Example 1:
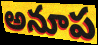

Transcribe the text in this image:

అనూప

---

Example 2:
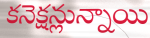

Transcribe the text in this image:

కనెక్షన్లున్నాయి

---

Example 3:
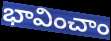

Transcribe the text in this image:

భావించాం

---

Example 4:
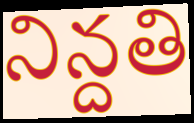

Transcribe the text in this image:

నిన్దతి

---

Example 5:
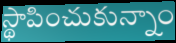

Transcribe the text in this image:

స్థాపించుకున్నాం